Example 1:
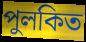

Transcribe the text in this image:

পুলকিত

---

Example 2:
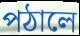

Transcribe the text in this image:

পঠালে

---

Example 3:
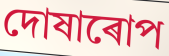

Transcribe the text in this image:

দোষাৰোপ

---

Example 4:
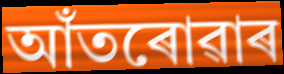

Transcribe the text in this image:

আঁতৰোৱাৰ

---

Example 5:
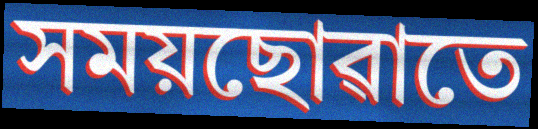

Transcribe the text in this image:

সময়ছোৱাতে